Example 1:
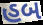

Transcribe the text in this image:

હબ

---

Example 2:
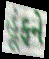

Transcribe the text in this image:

હૂંફને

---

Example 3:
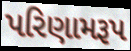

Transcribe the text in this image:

પરિણામરૂપ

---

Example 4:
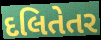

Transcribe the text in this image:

દલિતેતર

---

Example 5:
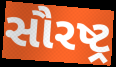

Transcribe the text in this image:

સૌરષ્ટ્ર